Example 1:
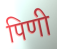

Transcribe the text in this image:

पिणी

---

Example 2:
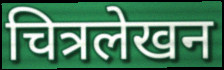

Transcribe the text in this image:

चित्रलेखन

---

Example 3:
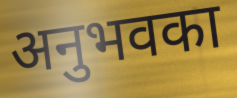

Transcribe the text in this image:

अनुभवका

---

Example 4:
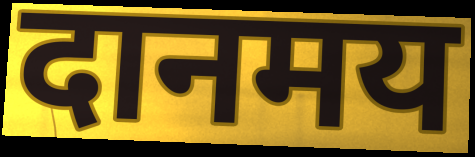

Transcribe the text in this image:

दानमय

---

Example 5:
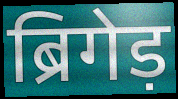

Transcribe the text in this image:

ब्रिगेड़